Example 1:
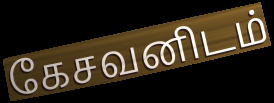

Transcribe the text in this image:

கேசவனிடம்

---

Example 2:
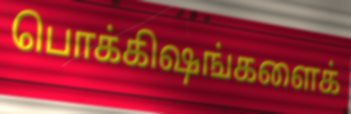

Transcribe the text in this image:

பொக்கிஷங்களைக்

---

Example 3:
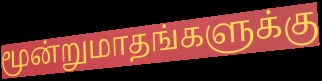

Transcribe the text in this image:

மூன்றுமாதங்களுக்கு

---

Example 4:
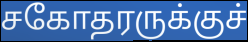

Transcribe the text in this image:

சகோதரருக்குச்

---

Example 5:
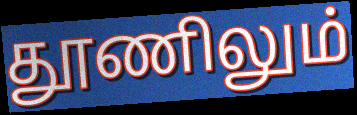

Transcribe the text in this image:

தூணிலும்